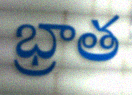
భ్రాత